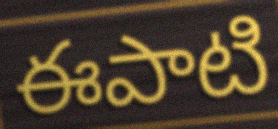
ఈపాటి